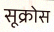
सूक्रोस